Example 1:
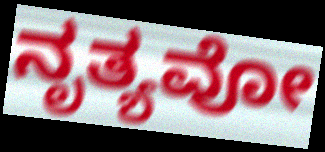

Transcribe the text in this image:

ನೃತ್ಯವೋ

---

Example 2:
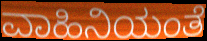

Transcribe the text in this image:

ವಾಹಿನಿಯಂತೆ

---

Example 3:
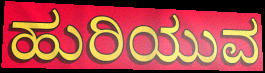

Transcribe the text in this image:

ಹುರಿಯುವ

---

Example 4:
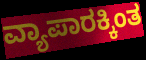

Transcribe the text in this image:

ವ್ಯಾಪಾರಕ್ಕಿಂತ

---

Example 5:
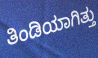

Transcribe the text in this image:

ತಿಂಡಿಯಾಗಿತ್ತು